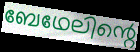
ബേഥേലിന്റെ